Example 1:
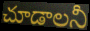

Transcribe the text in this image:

చూడాలనీ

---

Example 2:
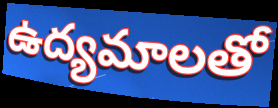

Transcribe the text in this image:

ఉద్యమాలతో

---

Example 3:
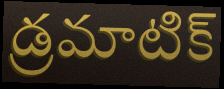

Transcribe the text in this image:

డ్రమాటిక్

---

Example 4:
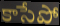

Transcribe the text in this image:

కాసేపో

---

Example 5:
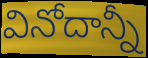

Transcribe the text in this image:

వినోదాన్నీ